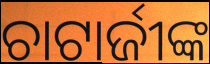
ଚାଟାର୍ଜୀଙ୍କ